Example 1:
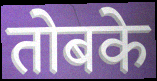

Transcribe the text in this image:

तोबके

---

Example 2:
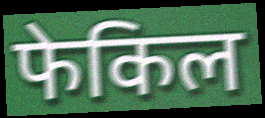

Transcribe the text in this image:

फेकिल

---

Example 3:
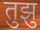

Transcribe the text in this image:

तुझु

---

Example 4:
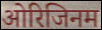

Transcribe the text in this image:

ओरिजिनम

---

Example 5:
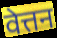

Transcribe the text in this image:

वेत्तन